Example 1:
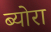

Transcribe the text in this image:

ब्योरा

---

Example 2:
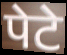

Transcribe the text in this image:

पेटे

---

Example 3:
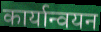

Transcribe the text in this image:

कार्यान्वयन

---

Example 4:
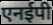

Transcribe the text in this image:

एनईपी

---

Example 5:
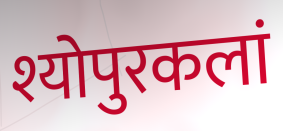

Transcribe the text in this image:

श्योपुरकलां